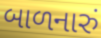
બાળનારું